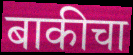
बाकीचा